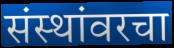
संस्थांवरचा